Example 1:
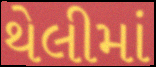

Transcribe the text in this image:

થેલીમાં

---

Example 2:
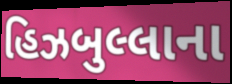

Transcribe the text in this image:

હિઝબુલ્લાના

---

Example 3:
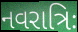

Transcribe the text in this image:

નવરાત્રિઃ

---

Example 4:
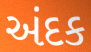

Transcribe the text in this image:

અંદક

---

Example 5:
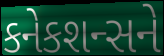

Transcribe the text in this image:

કનેકશન્સને